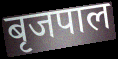
बृजपाल